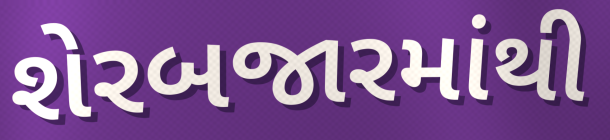
શેરબજારમાંથી